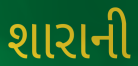
શારાની